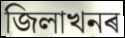
জিলাখনৰ